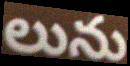
లును